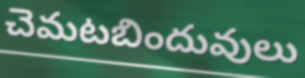
చెమటబిందువులు